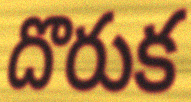
దొరుక